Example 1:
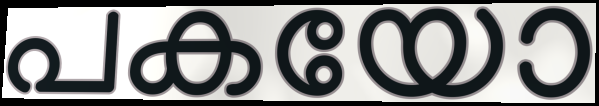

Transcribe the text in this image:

പകയോ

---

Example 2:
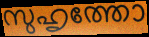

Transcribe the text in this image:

സുഹൃത്തോ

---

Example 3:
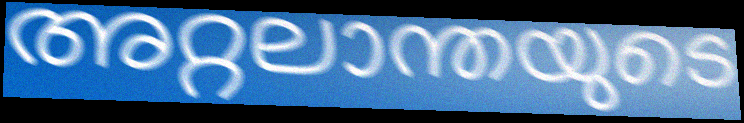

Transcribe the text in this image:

അറ്റലാന്തയുടെ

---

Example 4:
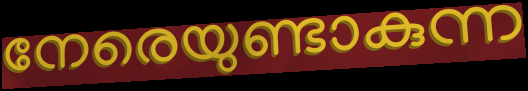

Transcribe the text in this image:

നേരെയുണ്ടാകുന്ന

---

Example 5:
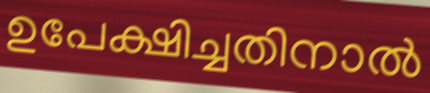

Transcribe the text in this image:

ഉപേക്ഷിച്ചതിനാൽ